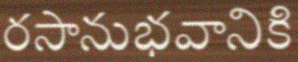
రసానుభవానికి